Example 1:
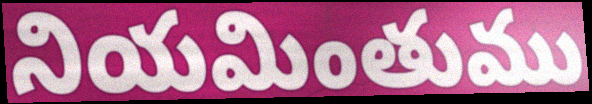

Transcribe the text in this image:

నియమింతుము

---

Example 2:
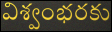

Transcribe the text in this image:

విశ్వంభరకు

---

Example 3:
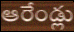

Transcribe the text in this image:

ఆరేండ్లు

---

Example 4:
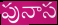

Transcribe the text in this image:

పునాస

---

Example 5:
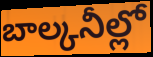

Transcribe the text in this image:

బాల్కనీల్లో